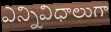
ఎన్నివిధాలుగా